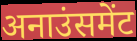
अनाउंसमेंट